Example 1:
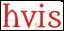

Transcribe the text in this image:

hvis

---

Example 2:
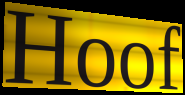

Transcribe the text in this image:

Hoof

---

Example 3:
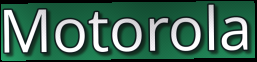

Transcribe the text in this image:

Motorola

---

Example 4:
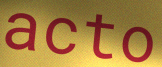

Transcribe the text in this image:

acto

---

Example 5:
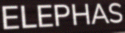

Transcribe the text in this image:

ELEPHAS